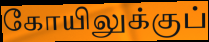
கோயிலுக்குப்